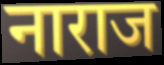
नाराज